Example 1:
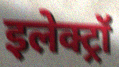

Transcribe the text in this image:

इलेक्ट्रॉ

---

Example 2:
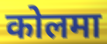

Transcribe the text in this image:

कोलमा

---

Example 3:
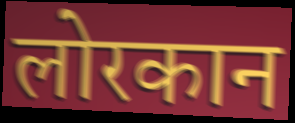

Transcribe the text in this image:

लोरकान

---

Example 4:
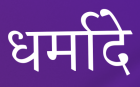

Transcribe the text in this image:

धर्मादे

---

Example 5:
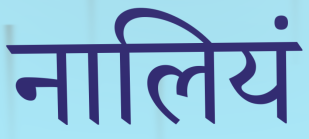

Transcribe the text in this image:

नालियं